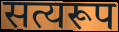
सत्यरूप